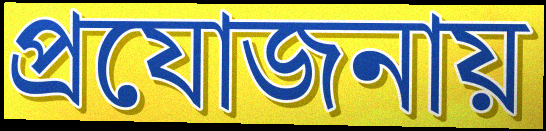
প্রযোজনায়